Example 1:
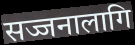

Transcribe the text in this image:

सज्जनालागि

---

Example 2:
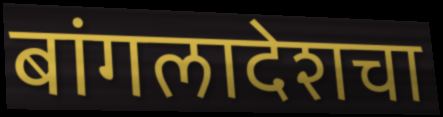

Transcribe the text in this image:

बांगलादेशचा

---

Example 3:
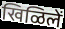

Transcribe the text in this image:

खिळिलें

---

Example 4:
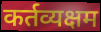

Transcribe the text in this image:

कर्तव्यक्षम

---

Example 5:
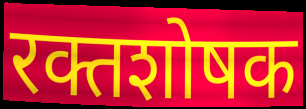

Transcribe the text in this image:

रक्तशोषक